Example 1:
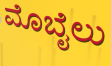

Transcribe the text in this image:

ಮೊಬೈಲು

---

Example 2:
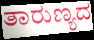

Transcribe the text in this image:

ತಾರುಣ್ಯದ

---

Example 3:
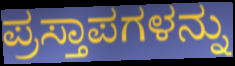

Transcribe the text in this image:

ಪ್ರಸ್ತಾಪಗಳನ್ನು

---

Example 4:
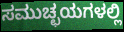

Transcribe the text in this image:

ಸಮುಚ್ಛಯಗಳಲ್ಲಿ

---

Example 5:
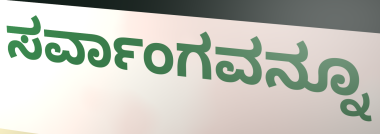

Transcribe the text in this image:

ಸರ್ವಾಂಗವನ್ನೂ